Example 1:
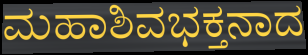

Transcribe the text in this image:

ಮಹಾಶಿವಭಕ್ತನಾದ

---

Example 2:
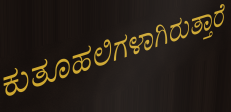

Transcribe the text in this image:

ಕುತೂಹಲಿಗಳಾಗಿರುತ್ತಾರೆ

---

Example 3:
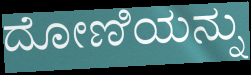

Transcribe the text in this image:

ದೋಣಿಯನ್ನು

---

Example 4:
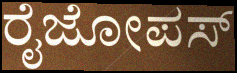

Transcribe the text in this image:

ರೈಜೋಪಸ್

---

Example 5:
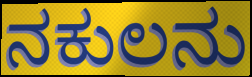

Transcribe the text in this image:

ನಕುಲನು